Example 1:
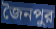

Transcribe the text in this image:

জৈনপুর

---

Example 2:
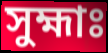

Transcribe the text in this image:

সুহ্মাঃ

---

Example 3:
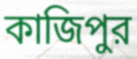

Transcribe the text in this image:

কাজিপুর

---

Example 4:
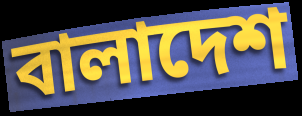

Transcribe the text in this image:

বালাদেশ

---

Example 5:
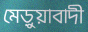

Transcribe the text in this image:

মেড়ুয়াবাদী